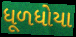
ધૂળધોયા